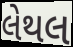
લેથલ